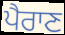
ਪੈਰਾਣ